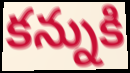
కన్నుకి